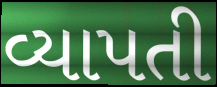
વ્યાપતી